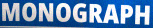
MONOGRAPH